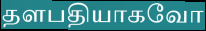
தளபதியாகவோ